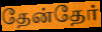
தேன்தேர்